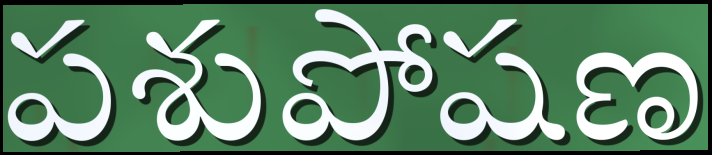
పశుపోషణ